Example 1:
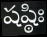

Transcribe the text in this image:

షష్ఠిః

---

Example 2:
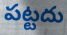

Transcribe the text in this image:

పట్టదు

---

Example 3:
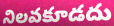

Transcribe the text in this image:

నిలవకూడదు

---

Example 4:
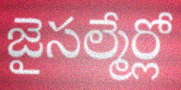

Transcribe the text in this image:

జైసల్మేర్లో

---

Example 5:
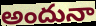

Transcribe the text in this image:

అందునా